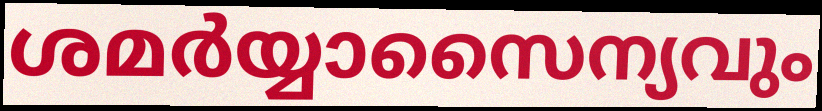
ശമർയ്യാസൈന്യവും